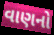
વાણનો